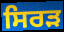
ਸਿਰਡ਼